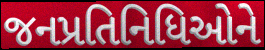
જનપ્રતિનિધિઓને